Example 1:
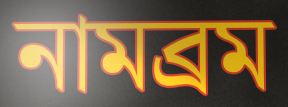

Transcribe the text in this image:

নামব্রম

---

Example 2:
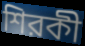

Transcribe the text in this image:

শিরকী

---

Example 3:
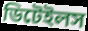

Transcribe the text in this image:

ডিটেইলস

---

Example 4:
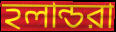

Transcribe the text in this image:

হলান্ডরা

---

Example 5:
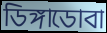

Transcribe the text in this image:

ডিঙ্গাডোবা